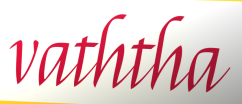
vaththa